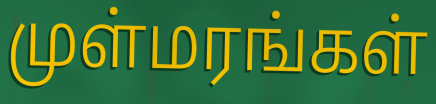
முள்மரங்கள்